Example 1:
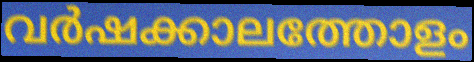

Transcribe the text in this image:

വർഷക്കാലത്തോളം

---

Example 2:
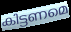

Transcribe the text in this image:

കിട്ടണമെ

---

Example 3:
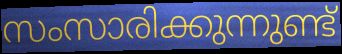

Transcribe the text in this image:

സംസാരിക്കുന്നുണ്ട്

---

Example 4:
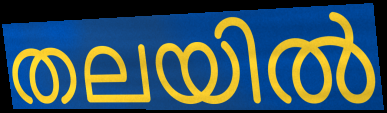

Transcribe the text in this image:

തലയിൽ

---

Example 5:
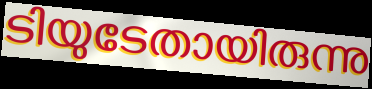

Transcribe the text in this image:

ടിയുടേതായിരുന്നു